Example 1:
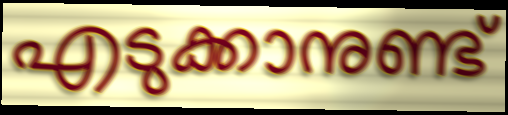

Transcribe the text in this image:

എടുക്കാനുണ്ട്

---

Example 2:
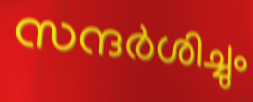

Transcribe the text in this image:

സന്ദർശിച്ചും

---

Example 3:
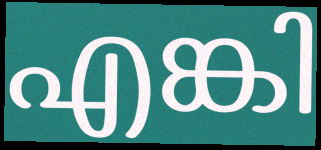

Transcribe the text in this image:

എങ്കി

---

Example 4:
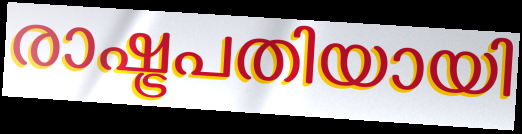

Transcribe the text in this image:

രാഷ്ട്രപതിയായി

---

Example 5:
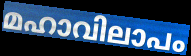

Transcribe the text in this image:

മഹാവിലാപം